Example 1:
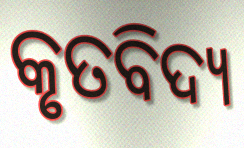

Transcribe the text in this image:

କୃତବିଦ୍ଯ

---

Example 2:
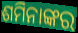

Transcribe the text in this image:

ଶମିନାଙ୍କର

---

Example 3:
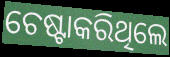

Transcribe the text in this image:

ଚେଷ୍ଟାକରିଥିଲେ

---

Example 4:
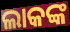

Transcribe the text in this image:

ଲାକଙ୍କ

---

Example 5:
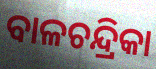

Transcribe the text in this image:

ବାଳଚନ୍ଦ୍ରିକା